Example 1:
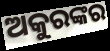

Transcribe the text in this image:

ଅକୁରଙ୍କର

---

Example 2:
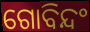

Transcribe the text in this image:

ଗୋବିନ୍ଦଂ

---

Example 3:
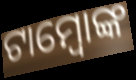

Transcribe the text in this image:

ଟାମ୍ବୋଙ୍କ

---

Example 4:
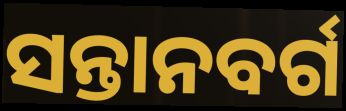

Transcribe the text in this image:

ସନ୍ତାନବର୍ଗ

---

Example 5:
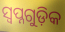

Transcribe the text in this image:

ସ୍ୱପ୍ନଗୁଡ଼ିକ